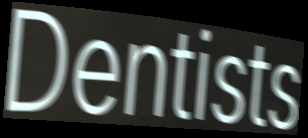
Dentists